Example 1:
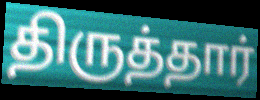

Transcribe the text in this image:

திருத்தார்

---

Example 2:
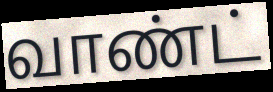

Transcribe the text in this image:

வாண்ட்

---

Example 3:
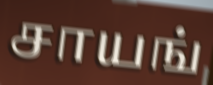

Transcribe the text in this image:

சாயங்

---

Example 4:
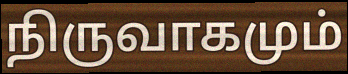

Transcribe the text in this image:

நிருவாகமும்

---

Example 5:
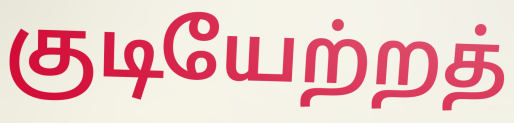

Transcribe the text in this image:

குடியேற்றத்